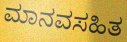
ಮಾನವಸಹಿತ